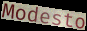
Modesto